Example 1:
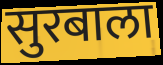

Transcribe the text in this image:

सुरबाला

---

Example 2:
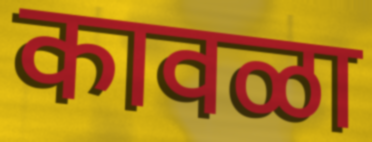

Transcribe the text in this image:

कावळा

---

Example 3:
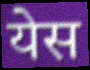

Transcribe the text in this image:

येस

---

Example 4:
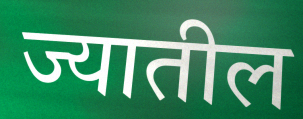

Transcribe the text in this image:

ज्यातील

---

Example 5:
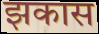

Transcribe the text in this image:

झकास